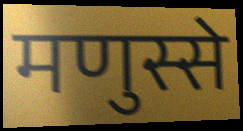
मणुस्से